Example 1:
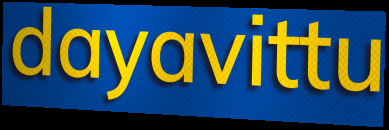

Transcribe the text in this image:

dayavittu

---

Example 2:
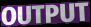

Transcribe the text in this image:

OUTPUT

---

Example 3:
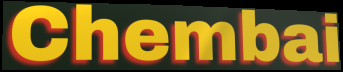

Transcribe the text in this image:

Chembai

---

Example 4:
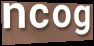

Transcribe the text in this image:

ncog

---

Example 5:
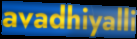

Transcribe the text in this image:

avadhiyalli